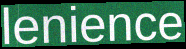
lenience